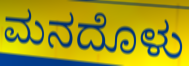
ಮನದೊಳು